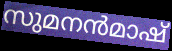
സുമനൻമാഷ്